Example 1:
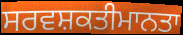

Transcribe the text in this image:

ਸਰਵਸ਼ਕਤੀਮਾਨਤਾ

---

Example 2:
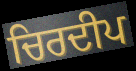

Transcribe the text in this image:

ਚਿਰਦੀਪ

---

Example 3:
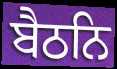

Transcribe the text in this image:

ਬੈਠਨਿ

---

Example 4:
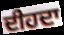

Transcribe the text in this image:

ਦੀਹਦਾ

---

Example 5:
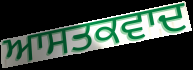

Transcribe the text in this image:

ਆਸਤਕਵਾਦ